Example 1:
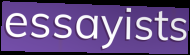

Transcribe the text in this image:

essayists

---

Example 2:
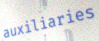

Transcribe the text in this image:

auxiliaries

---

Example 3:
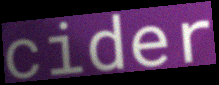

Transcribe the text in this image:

cider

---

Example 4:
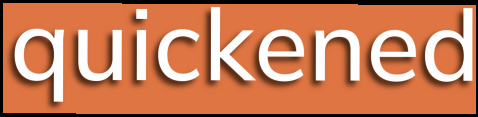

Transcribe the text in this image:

quickened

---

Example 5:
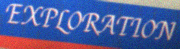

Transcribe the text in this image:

EXPLORATION